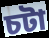
চটা